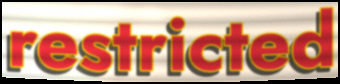
restricted